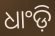
ଧାଂଡ଼ି